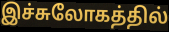
இச்சுலோகத்தில்